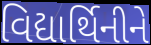
વિદ્યાર્થિનીને